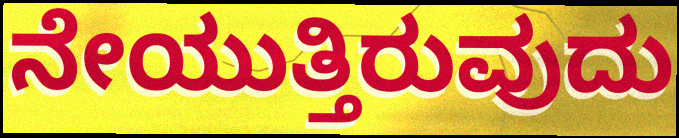
ನೇಯುತ್ತಿರುವುದು